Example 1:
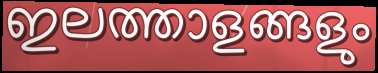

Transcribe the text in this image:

ഇലത്താളങ്ങളും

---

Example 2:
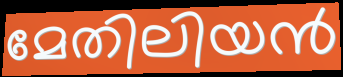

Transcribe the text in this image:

മേതിലിയൻ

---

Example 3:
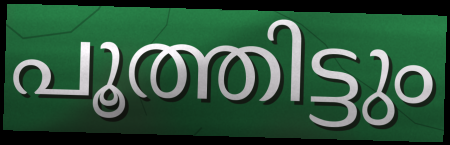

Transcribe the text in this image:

പൂത്തിട്ടും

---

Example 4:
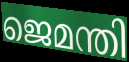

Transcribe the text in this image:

ജെമന്തി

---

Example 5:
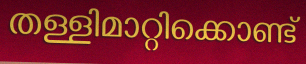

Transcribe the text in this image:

തള്ളിമാറ്റിക്കൊണ്ട്